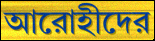
আরোহীদের